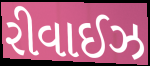
રીવાઈઝ